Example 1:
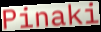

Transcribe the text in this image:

Pinaki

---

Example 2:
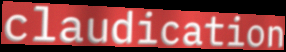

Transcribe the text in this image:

claudication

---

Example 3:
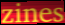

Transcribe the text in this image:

zines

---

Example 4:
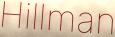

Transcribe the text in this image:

Hillman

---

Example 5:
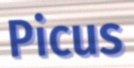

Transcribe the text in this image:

Picus